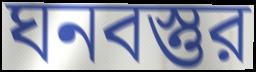
ঘনবস্তুর